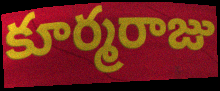
కూర్మరాజు